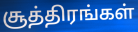
சூத்திரங்கள்